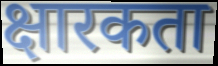
क्षारकता